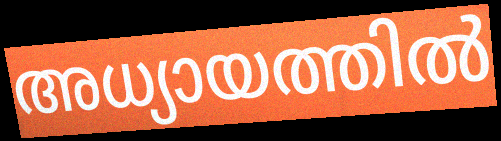
അധ്യായത്തിൽ